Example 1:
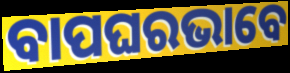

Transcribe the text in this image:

ବାପଘରଭାବେ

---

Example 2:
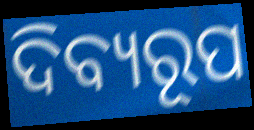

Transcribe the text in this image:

ଦିବ୍ୟରୂପ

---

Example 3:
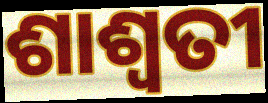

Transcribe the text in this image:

ଶାଶ୍ଵତୀ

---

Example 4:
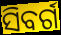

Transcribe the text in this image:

ସିବର୍ଗ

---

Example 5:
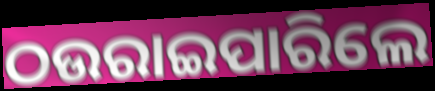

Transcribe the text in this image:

ଠଉରାଇପାରିଲେ